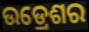
ଉଡ୍ରେଶର